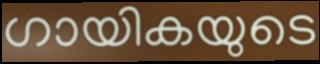
ഗായികയുടെ